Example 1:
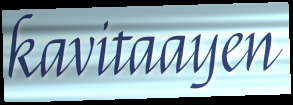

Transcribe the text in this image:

kavitaayen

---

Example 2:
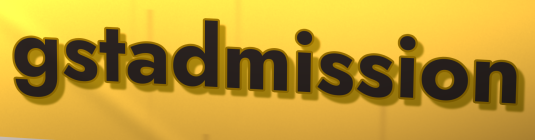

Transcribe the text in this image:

gstadmission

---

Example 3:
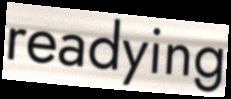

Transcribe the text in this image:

readying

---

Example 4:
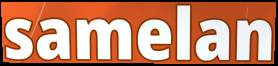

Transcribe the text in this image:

samelan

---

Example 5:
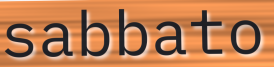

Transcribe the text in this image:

sabbato